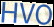
HVO